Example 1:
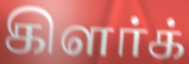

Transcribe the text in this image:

கிளர்க்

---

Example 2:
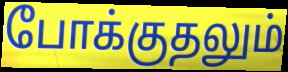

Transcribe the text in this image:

போக்குதலும்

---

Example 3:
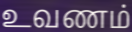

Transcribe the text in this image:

உவணம்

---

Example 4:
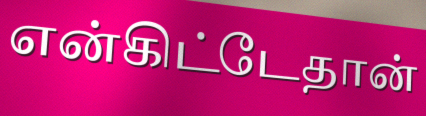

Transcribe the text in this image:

என்கிட்டேதான்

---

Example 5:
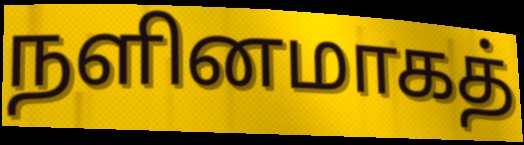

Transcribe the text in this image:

நளினமாகத்